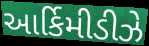
આર્કિમીડીઝે